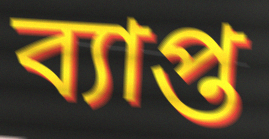
ব্যাপ্ত